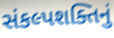
સંકલ્પશક્તિનું